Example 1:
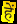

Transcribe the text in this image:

हें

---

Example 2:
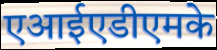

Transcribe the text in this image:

एआईएडीएमके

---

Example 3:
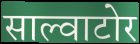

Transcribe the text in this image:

साल्वाटोर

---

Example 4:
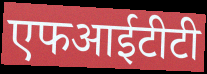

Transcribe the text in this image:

एफआईटीटी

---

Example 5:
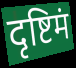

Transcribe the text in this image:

दृष्टिमं